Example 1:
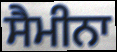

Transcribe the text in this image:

ਸੈਮੀਨਾ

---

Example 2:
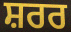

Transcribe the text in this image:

ਸ਼ਰਰ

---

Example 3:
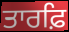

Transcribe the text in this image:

ਤਾਰਫ਼ਿ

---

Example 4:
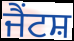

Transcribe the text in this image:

ਜੈਂਟਸ਼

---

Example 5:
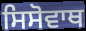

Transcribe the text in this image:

ਸਿਸੋਵਾਥ